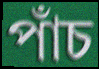
পাঁচ